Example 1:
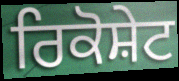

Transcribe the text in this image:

ਰਿਕੋਸ਼ੇਟ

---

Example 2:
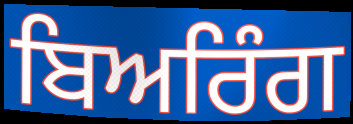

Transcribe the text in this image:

ਬਿਅਰਿੰਗ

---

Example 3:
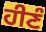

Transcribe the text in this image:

ਹੀਣੰ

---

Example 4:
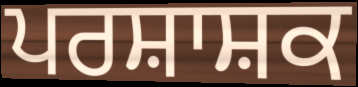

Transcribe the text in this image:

ਪਰਸ਼ਾਸ਼ਕ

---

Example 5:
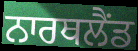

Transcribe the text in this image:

ਨਾਰਥਲੈਂਡ